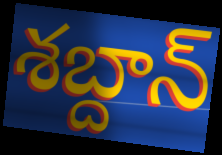
శబ్దాన్